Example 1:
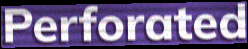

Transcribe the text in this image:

Perforated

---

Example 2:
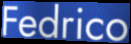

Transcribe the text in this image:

Fedrico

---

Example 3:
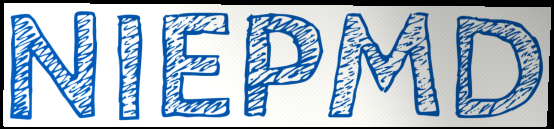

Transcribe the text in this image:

NIEPMD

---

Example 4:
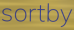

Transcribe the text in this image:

sortby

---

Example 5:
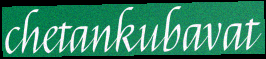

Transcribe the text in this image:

chetankubavat